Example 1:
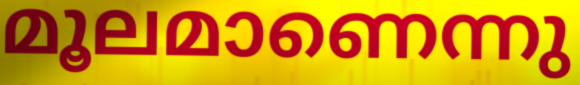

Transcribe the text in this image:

മൂലമാണെന്നു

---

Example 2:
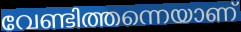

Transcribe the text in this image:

വേണ്ടിത്തന്നെയാണ്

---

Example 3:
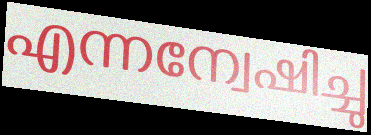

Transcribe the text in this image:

എന്നന്വേഷിച്ചു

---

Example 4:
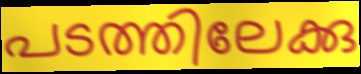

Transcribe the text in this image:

പടത്തിലേക്കു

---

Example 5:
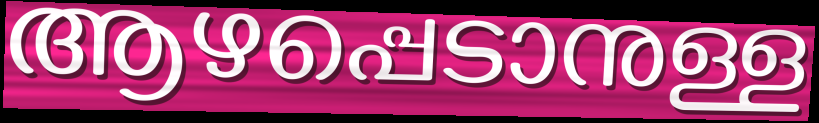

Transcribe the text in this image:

ആഴപ്പെടാനുള്ള